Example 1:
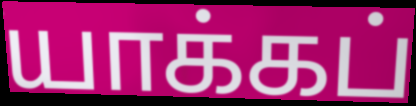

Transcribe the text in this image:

யாக்கப்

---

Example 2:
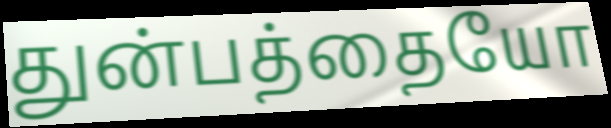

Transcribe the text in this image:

துன்பத்தையோ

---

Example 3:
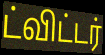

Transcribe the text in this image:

ட்விட்டர்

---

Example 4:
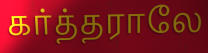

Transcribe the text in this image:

கர்த்தராலே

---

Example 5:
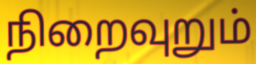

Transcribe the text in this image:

நிறைவுறும்